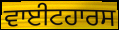
ਵਾਈਟਹਾਰਸ